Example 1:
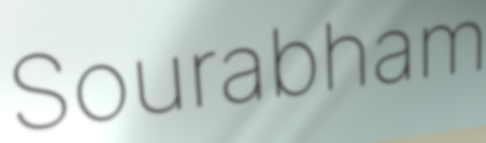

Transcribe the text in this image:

Sourabham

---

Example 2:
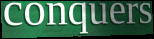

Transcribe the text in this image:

conquers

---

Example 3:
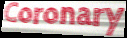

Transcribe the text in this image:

Coronary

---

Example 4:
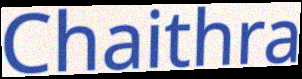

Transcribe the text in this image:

Chaithra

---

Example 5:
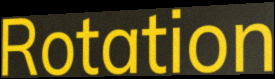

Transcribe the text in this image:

Rotation